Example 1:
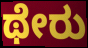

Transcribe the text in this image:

ಥೇರು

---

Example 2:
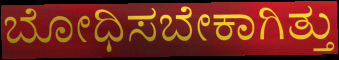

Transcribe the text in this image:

ಬೋಧಿಸಬೇಕಾಗಿತ್ತು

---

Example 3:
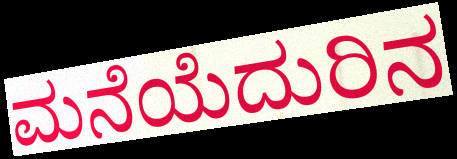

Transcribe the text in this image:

ಮನೆಯೆದುರಿನ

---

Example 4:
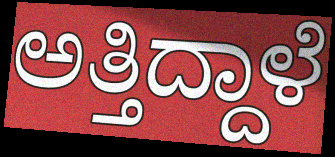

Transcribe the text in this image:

ಅತ್ತಿದ್ದಾಳೆ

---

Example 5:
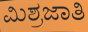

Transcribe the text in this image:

ಮಿಶ್ರಜಾತಿ